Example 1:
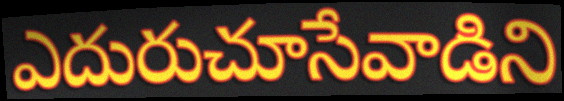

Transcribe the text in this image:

ఎదురుచూసేవాడిని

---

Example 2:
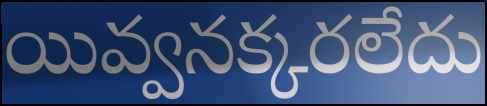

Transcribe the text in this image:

యివ్వనక్కరలేదు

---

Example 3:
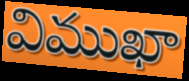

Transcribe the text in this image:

విముఖా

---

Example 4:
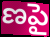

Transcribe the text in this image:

ణపై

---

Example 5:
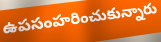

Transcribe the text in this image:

ఉపసంహరించుకున్నారు